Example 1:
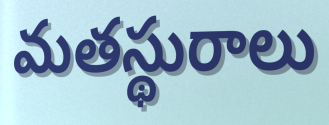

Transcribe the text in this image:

మతస్థురాలు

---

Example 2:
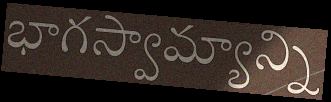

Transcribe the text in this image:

భాగస్వామ్యాన్ని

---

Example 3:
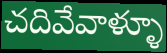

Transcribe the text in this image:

చదివేవాళ్ళూ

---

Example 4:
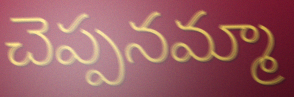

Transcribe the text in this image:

చెప్పనమ్మా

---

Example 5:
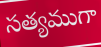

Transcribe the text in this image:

సత్యముగా